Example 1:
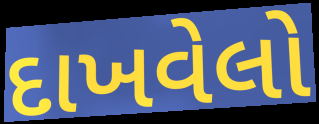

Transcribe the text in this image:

દાખવેલો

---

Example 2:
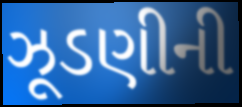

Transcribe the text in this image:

ઝૂડણીની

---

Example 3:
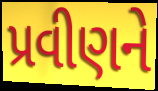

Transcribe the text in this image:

પ્રવીણને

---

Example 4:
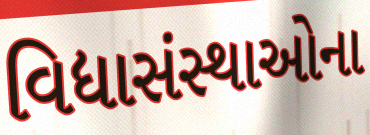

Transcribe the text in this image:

વિદ્યાસંસ્થાઓના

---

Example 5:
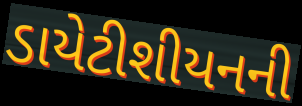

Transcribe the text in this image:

ડાયેટીશીયનની